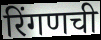
रिंगणची